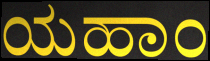
ಯಹಾಂ